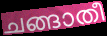
ചങ്ങാതീ